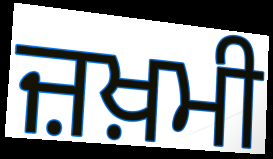
ਜ਼ਖ਼ਮੀ